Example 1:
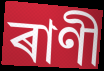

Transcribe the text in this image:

ৰাণী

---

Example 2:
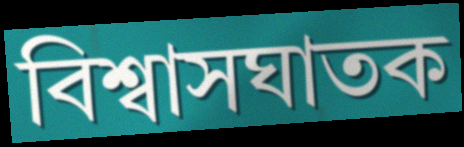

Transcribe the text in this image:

বিশ্বাসঘাতক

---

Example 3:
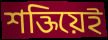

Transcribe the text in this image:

শক্তিয়েই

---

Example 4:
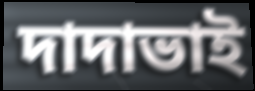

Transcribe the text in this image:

দাদাভাই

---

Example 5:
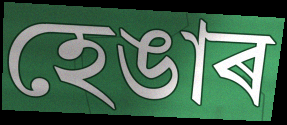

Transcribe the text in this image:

হেঙাৰ